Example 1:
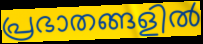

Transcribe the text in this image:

പ്രഭാതങ്ങളിൽ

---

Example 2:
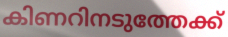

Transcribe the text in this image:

കിണറിനടുത്തേക്ക്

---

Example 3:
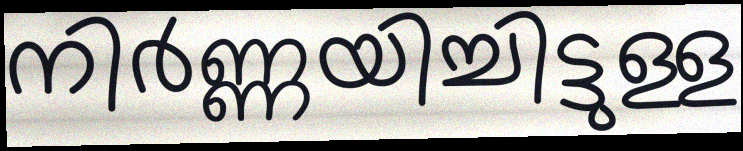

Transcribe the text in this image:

നിർണ്ണയിച്ചിട്ടുള്ള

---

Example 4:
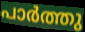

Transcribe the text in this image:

പാർത്തു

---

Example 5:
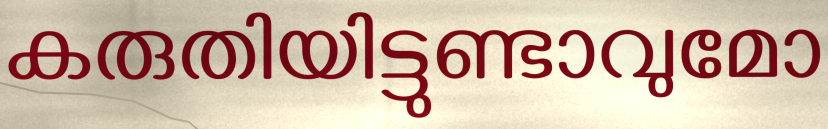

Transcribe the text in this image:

കരുതിയിട്ടുണ്ടാവുമോ